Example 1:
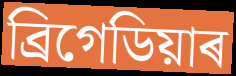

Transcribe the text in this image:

ব্ৰিগেডিয়াৰ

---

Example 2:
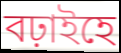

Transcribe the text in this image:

বঢ়াইহে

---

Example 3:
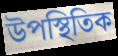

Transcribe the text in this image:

উপস্থিতিক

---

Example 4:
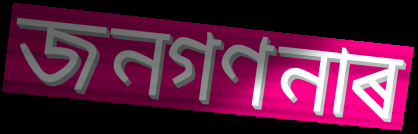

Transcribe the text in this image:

জনগণনাৰ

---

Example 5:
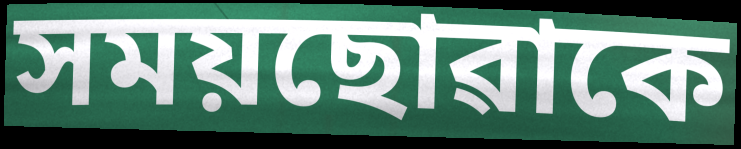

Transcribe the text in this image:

সময়ছোৱাকে